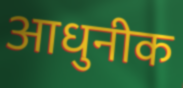
आधुनीक